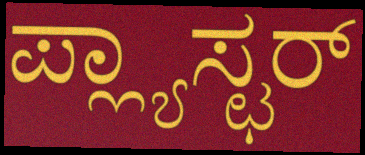
ಪ್ಲ್ಯಾಸ್ಟರ್